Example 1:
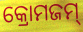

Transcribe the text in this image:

କ୍ରୋମଜମ୍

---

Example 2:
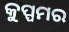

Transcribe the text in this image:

କୁପ୍ପମର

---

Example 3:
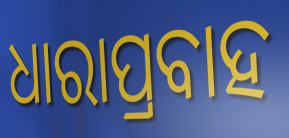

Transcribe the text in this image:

ଧାରାପ୍ରବାହ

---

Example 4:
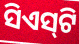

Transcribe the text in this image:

ସିଏସ୍‌ଟି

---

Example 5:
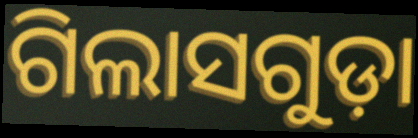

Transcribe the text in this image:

ଗିଲାସଗୁଡ଼ା